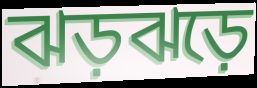
ঝড়ঝড়ে